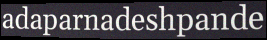
adaparnadeshpande